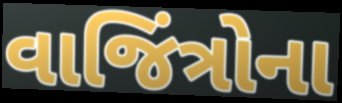
વાજિંત્રોના